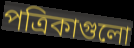
পত্রিকাগুলো